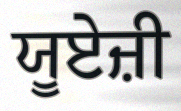
ਯੂਏਜ਼ੀ